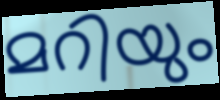
മറിയും